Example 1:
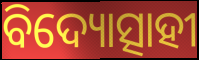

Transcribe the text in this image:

ବିଦ୍ୟୋତ୍ସାହୀ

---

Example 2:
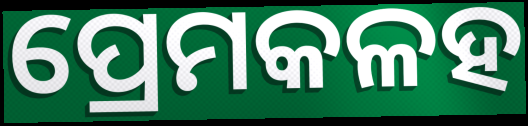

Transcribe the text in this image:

ପ୍ରେମକଳହ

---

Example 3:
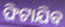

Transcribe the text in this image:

ଫିଟାଯିବ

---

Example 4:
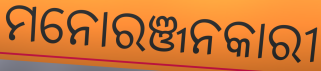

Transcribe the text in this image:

ମନୋରଞ୍ଜନକାରୀ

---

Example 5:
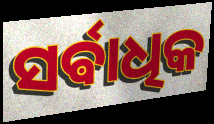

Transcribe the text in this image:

ସର୍ଵାଧିକ